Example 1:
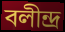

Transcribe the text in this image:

বলীন্দ্ৰ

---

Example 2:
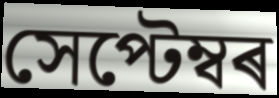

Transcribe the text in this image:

সেপ্টেম্বৰ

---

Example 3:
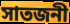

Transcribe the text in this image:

সাতজনী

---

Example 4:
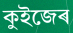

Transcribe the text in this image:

কুইজেৰ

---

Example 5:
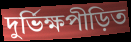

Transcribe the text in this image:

দুৰ্ভিক্ষপীড়িত